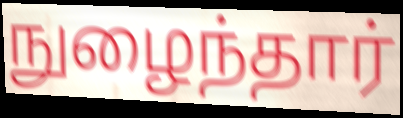
நுழைந்தார்